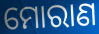
ମୋରାଣ